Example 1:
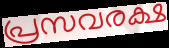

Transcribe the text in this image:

പ്രസവരക്ഷ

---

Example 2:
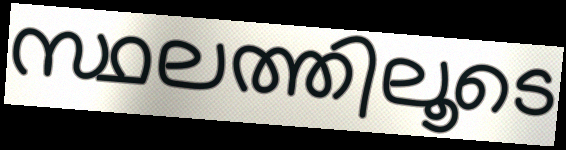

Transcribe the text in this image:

സ്ഥലത്തിലൂടെ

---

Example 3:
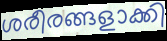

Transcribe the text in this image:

ശരീരങ്ങളാക്കി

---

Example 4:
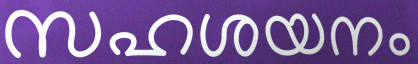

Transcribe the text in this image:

സഹശയനം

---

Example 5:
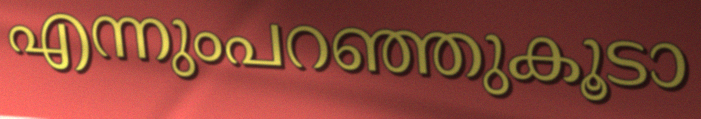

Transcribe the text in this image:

എന്നുംപറഞ്ഞുകൂടാ